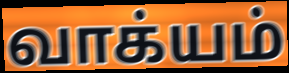
வாக்யம்